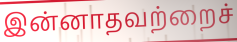
இன்னாதவற்றைச்